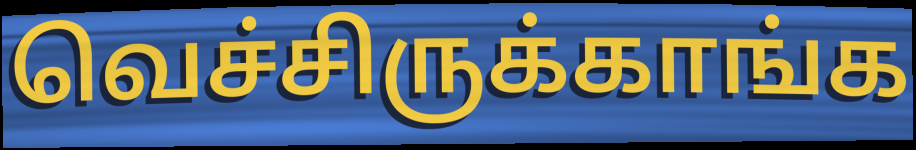
வெச்சிருக்காங்க